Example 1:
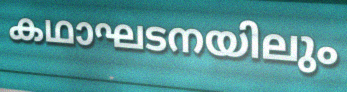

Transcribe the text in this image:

കഥാഘടനയിലും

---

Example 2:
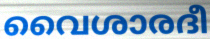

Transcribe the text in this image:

വൈശാരദീ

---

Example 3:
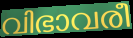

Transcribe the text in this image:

വിഭാവരീ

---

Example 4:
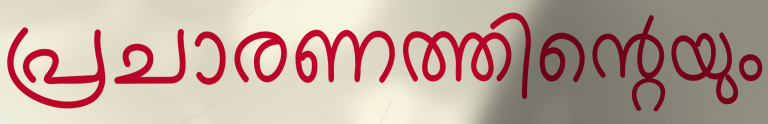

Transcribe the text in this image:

പ്രചാരണത്തിന്റെയും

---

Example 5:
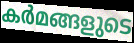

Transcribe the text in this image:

കർമങ്ങളുടെ